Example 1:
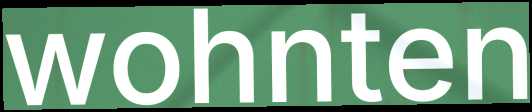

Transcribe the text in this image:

wohnten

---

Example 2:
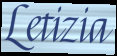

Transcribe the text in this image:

Letizia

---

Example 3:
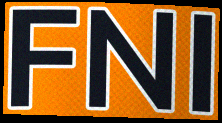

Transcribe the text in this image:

FNI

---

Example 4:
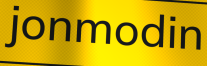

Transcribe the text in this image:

jonmodin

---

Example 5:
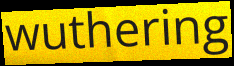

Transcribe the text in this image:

wuthering